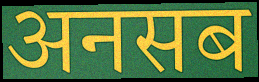
अनसब